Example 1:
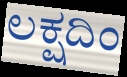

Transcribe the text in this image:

ಲಕ್ಷದಿಂ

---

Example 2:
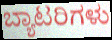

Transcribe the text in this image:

ಬ್ಯಾಟರಿಗಳು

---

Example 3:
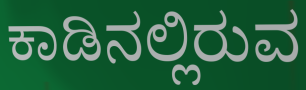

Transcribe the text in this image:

ಕಾಡಿನಲ್ಲಿರುವ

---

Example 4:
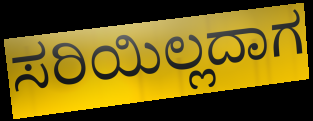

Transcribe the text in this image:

ಸರಿಯಿಲ್ಲದಾಗ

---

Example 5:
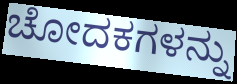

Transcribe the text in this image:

ಚೋದಕಗಳನ್ನು